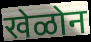
खेळोन